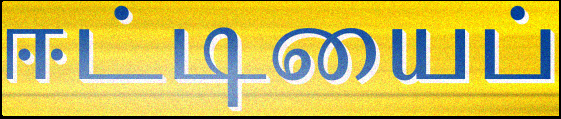
ஈட்டியைப்